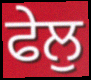
ਫੇਲੁ